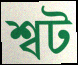
শ্বট